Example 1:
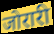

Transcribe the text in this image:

जोरारी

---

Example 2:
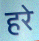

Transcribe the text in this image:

हरे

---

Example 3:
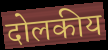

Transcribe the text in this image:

दोलकीय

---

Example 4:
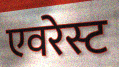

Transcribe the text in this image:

एवरेस्ट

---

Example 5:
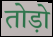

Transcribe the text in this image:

तोड़ो